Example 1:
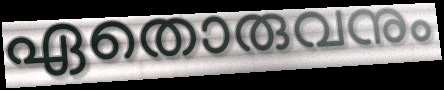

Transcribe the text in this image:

ഏതൊരുവനും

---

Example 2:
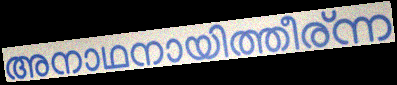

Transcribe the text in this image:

അനാഥനായിത്തീര്ന്ന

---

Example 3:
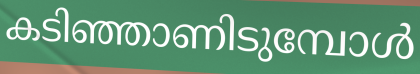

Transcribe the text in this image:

കടിഞ്ഞാണിടുമ്പോൾ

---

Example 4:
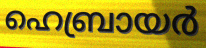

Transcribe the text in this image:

ഹെബ്രായർ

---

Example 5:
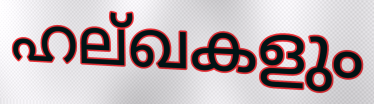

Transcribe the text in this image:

ഹല്ഖകളും